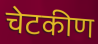
चेटकीण